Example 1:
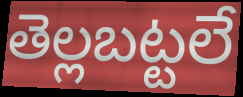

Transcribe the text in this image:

తెల్లబట్టలే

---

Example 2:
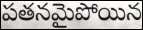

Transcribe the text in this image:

పతనమైపోయిన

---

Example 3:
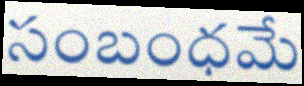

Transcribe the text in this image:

సంబంధమే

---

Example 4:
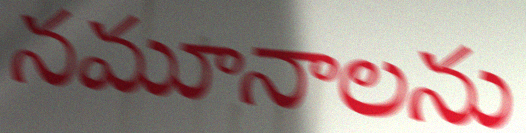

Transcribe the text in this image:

నమూనాలను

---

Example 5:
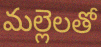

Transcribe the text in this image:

మల్లెలతో